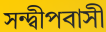
সন্দ্বীপবাসী